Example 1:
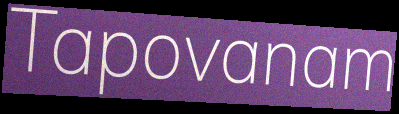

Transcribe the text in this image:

Tapovanam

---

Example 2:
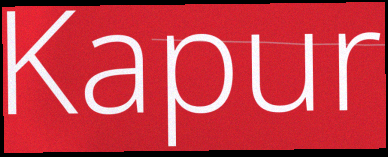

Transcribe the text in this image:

Kapur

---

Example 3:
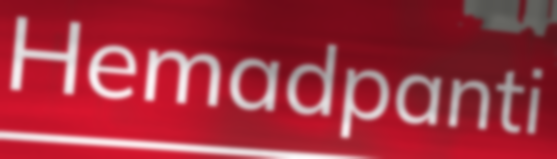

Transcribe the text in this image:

Hemadpanti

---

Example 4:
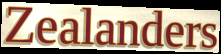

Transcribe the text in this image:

Zealanders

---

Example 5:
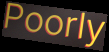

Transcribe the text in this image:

Poorly